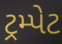
ટ્રમ્પેટ